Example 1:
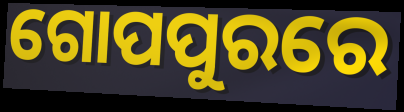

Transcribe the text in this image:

ଗୋପପୁରରେ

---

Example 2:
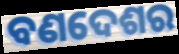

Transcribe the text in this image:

ବଣଦେଶର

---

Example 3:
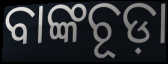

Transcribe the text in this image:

ବାଙ୍କଚୂଡ଼ା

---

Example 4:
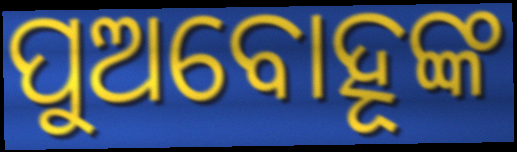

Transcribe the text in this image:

ପୁଅବୋହୂଙ୍କ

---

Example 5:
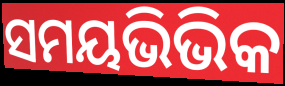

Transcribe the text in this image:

ସମୟଭିଭିକ